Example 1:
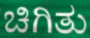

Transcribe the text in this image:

ಚಿಗಿತು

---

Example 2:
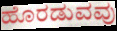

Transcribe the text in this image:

ಹೊರಡುವವು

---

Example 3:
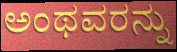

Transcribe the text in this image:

ಅಂಥವರನ್ನು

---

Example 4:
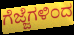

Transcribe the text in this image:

ಗೆಜ್ಜೆಗಳಿಂದ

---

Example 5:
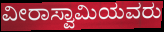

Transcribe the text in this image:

ವೀರಾಸ್ವಾಮಿಯವರು